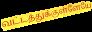
வட்டத்துக்குள்ளேயே